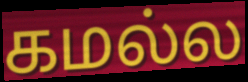
கமல்ல